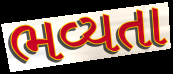
ભવ્યતા